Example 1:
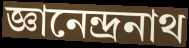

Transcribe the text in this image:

জ্ঞানেন্দ্রনাথ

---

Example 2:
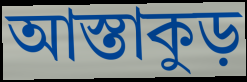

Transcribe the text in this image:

আস্তাকুড়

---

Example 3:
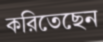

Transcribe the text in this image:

করিতেছেন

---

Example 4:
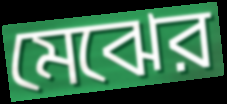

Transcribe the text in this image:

মেঝের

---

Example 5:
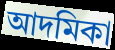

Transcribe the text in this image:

আদমিকা